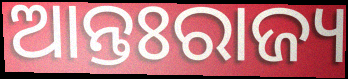
ଆନ୍ତଃରାଜ୍ୟ